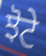
ਝੋਟੇ